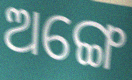
ଅଙ୍ଗେ